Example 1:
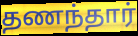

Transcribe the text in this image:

தணந்தார்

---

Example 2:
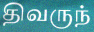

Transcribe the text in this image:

திவருந்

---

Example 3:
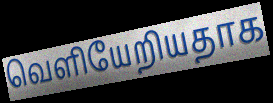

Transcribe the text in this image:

வெளியேறியதாக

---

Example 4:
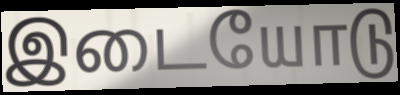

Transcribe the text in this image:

இடையோடு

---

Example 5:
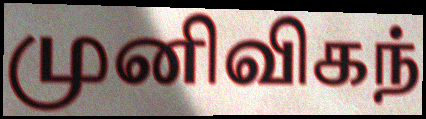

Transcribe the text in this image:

முனிவிகந்